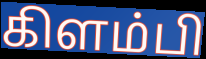
கிளம்பி